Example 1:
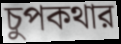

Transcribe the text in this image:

চুপকথার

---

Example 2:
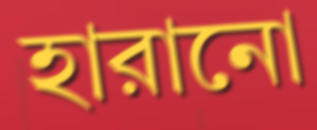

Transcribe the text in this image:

হারানো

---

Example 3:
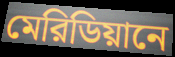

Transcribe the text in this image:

মেরিডিয়ানে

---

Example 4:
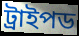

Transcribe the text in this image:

ট্রাইপড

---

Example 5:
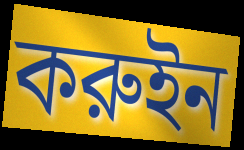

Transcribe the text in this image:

করুইন